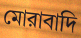
মোরাবাদি